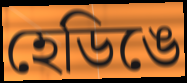
হেডিঙে